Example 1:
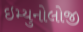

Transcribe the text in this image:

ઇમ્યુનોલોજી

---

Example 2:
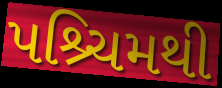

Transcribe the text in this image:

પશ્ર્ચિમથી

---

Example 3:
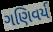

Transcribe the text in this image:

ગણિવર્ય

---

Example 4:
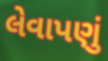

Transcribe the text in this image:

લેવાપણું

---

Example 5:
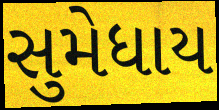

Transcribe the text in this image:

સુમેધાય